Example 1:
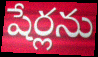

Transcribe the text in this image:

షేర్లను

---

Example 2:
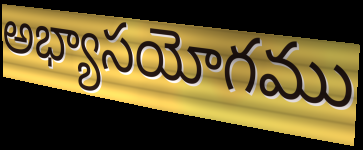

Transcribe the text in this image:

అభ్యాసయోగము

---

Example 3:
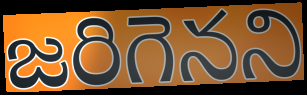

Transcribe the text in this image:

జరిగెనని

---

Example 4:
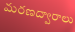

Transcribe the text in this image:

మరణద్వారాలు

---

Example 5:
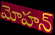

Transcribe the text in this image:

మోహన్